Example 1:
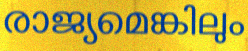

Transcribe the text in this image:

രാജ്യമെങ്കിലും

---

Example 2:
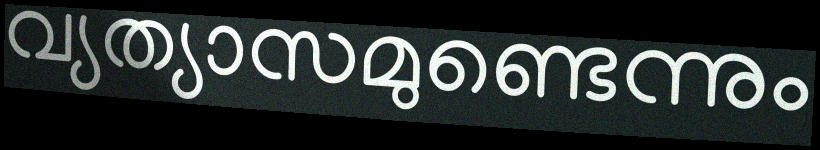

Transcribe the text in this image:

വ്യത്യാസമുണ്ടെന്നും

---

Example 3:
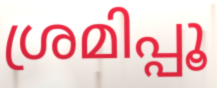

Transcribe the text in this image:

ശ്രമിപ്പൂ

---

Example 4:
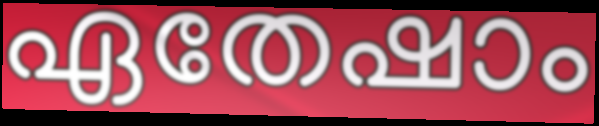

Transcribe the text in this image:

ഏതേഷാം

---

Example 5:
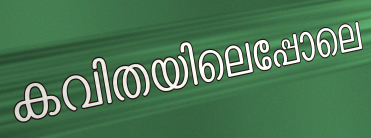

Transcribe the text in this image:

കവിതയിലെപ്പോലെ